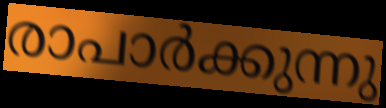
രാപാർക്കുന്നു